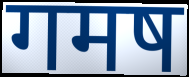
गमष